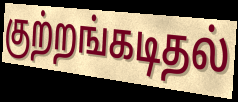
குற்றங்கடிதல்